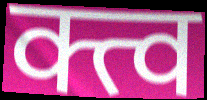
क्त्व